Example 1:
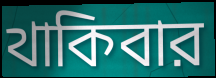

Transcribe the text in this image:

থাকিবার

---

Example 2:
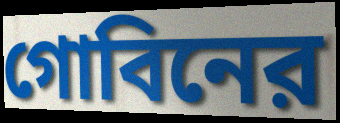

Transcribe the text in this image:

গোবিনের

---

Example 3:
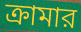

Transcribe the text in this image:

ক্রামার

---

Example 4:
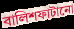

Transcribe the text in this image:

বালিশফাটানো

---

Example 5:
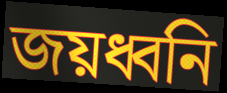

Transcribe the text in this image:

জয়ধ্বনি